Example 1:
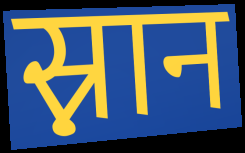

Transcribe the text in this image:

स्नान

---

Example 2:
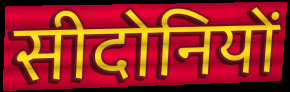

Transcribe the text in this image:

सीदोनियों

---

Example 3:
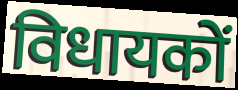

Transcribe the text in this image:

विधायकों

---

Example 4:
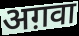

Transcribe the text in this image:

अग़वा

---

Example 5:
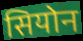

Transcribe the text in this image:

सियोन